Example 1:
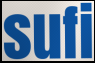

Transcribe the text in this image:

sufi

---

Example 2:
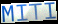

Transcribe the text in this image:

MITI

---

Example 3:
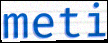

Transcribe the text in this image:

meti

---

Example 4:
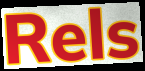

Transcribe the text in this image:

Rels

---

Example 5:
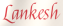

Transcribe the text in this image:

Lankesh